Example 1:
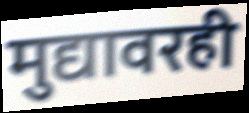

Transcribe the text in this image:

मुद्यावरही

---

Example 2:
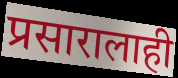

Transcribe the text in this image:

प्रसारालाही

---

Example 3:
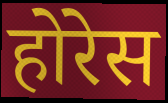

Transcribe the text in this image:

होरेस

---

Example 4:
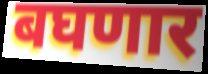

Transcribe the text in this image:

बघणार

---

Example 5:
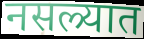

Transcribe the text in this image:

नसल्यात